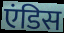
एंडिस